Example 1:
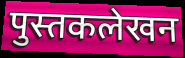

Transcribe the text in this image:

पुस्तकलेखन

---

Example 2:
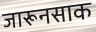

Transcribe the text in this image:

जारूनसाक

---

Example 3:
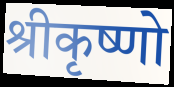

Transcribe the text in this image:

श्रीकृष्णो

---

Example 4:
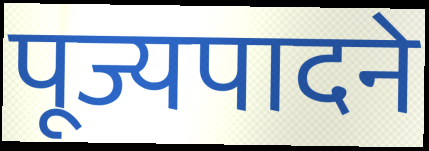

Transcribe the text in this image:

पूज्यपादने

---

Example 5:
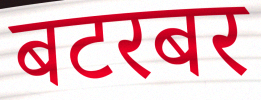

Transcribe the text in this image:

बटरबर